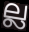
ല്ല